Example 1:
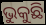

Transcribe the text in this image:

ଭୁକୁଛି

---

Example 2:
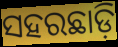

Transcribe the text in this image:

ସହରଛାଡ଼ି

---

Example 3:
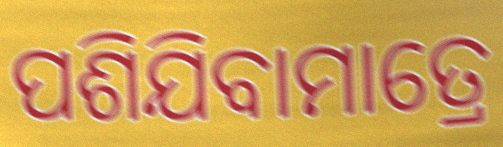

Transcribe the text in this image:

ପଶିଯିବାମାତ୍ରେ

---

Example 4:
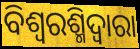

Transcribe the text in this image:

ବିଶ୍ୱରଶ୍ମିଦ୍ୱାରା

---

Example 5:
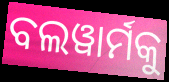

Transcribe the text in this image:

ବଲୱାର୍ମକୁ